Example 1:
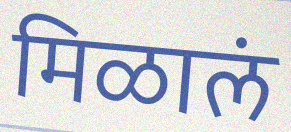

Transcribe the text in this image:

मिळालं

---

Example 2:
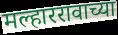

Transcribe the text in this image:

मल्हाररावाच्या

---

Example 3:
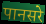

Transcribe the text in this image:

पानसरे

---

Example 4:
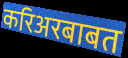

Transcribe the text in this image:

करिअरबाबत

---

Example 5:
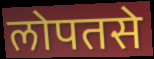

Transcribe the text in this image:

लोपतसे